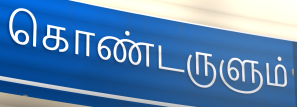
கொண்டருளும்